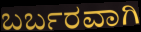
ಬರ್ಬರವಾಗಿ